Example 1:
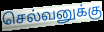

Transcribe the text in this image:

செல்வனுக்கு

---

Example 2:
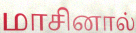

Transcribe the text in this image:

மாசினால்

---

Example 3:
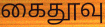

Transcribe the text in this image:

கைதூவு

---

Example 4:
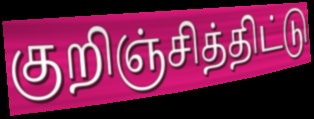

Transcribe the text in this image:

குறிஞ்சித்திட்டு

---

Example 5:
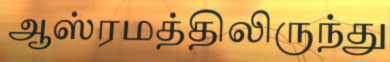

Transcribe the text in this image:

ஆஸ்ரமத்திலிருந்து